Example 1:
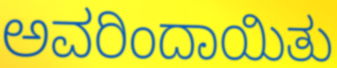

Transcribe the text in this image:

ಅವರಿಂದಾಯಿತು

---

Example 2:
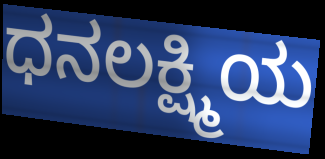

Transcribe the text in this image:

ಧನಲಕ್ಷ್ಮಿಯ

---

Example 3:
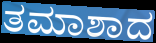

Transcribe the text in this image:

ತಮಾಶಾದ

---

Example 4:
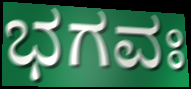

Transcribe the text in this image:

ಭಗವಃ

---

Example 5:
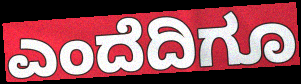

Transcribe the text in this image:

ಎಂದೆದಿಗೂ